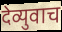
देव्युवाच